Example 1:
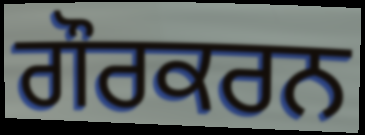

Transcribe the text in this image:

ਗੌਰਕਰਨ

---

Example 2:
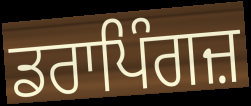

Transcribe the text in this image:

ਡਰਾਪਿੰਗਜ਼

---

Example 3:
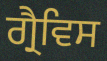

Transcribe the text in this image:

ਗ੍ਰੈਵਿਸ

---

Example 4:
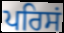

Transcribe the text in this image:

ਪਰਿਸਂ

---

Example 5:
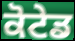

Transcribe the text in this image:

ਕੋਟੇਡ